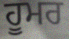
ਹੂਮਰ